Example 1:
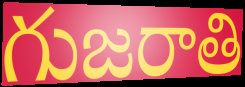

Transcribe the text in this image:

గుజరాతి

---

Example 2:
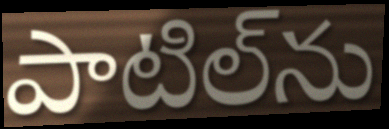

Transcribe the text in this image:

పాటిల్‌ను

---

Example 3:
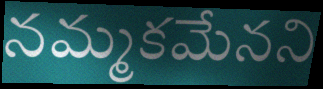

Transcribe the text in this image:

నమ్మకమేనని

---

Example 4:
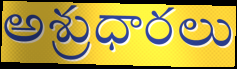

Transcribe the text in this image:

అశ్రుధారలు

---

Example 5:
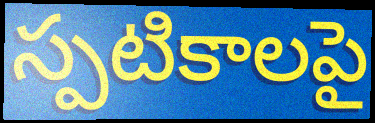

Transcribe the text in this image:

స్పటికాలపై